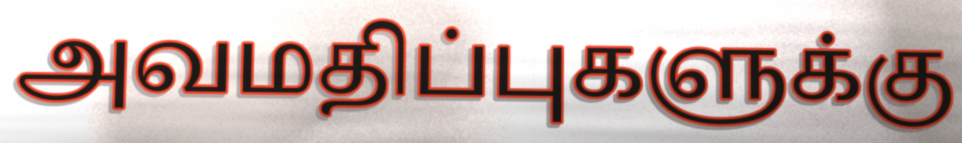
அவமதிப்புகளுக்கு